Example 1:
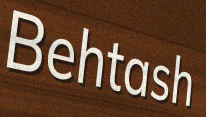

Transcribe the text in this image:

Behtash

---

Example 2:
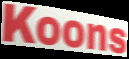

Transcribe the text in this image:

Koons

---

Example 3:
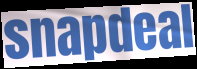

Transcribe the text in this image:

snapdeal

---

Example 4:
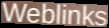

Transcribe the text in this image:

Weblinks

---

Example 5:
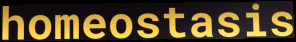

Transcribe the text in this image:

homeostasis